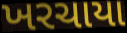
ખરચાયા